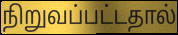
நிறுவப்பட்டதால்